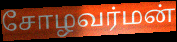
சோழவர்மன்